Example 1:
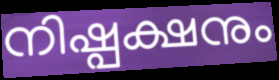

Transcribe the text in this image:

നിഷ്പക്ഷനും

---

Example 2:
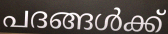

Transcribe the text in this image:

പദങ്ങൾക്ക്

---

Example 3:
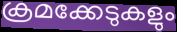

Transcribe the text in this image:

ക്രമക്കേടുകളും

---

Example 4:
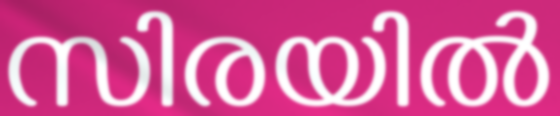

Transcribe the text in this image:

സിരയിൽ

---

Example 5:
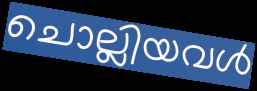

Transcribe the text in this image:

ചൊല്ലിയവൾ